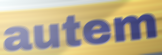
autem